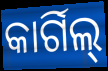
କାର୍ଗିଲ୍